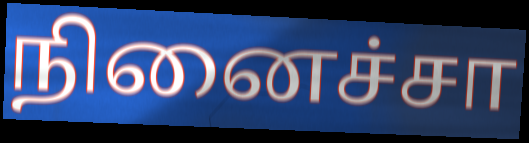
நினைச்சா